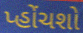
પ્હોંચશો